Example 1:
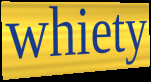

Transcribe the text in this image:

whiety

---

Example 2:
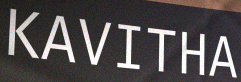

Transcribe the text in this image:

KAVITHA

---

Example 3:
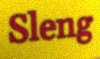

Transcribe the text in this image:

Sleng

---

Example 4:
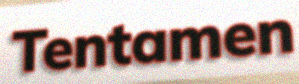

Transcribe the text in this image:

Tentamen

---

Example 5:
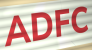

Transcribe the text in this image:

ADFC